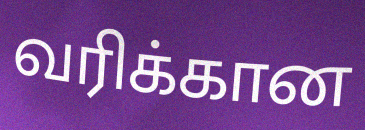
வரிக்கான